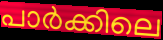
പാർക്കിലെ